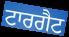
ਟਾਰਗੈਟ